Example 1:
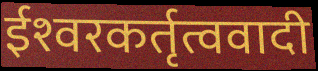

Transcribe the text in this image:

ईश्वरकर्तृत्ववादी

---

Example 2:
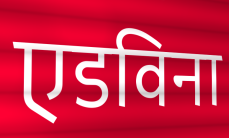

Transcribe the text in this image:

एडविना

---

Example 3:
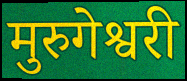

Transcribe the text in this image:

मुरुगेश्वरी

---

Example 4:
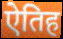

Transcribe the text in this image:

ऐतिह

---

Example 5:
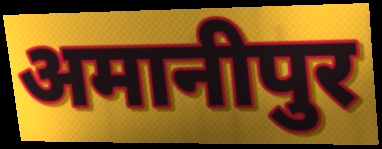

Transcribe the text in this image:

अमानीपुर